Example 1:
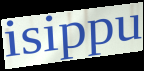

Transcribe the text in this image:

isippu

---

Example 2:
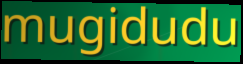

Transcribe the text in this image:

mugidudu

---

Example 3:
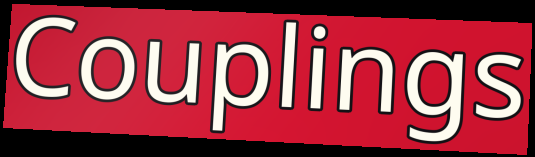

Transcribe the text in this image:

Couplings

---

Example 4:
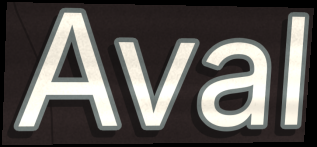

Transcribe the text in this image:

Aval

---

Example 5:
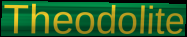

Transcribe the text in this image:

Theodolite